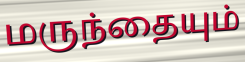
மருந்தையும்